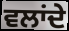
ਵਲਾਂਦੇ